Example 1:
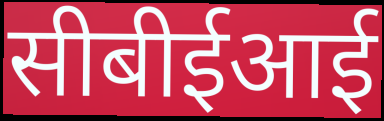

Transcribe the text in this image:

सीबीईआई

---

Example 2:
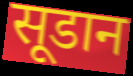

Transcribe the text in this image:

सूडान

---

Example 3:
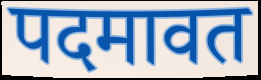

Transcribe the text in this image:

पदमावत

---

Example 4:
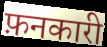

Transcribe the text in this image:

फ़नकारी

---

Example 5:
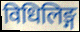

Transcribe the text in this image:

विधिलिङ्ग